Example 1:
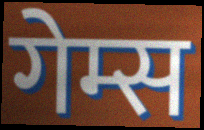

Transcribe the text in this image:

गेम्स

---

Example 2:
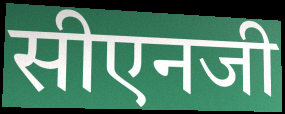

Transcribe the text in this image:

सीएनजी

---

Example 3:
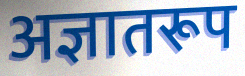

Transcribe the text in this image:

अज्ञातरूप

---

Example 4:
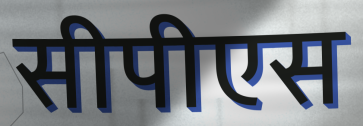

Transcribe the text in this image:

सीपीएस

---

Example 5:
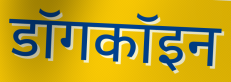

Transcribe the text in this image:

डॉगकॉइन